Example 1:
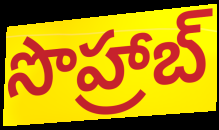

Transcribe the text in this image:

సొహ్రాబ్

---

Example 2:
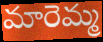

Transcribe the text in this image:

మారెమ్మ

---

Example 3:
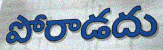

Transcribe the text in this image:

పోరాడదు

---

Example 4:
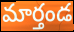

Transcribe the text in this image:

మార్తండ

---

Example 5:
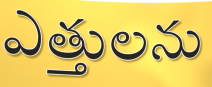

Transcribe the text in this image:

ఎత్తులను